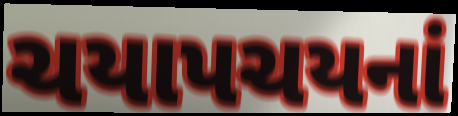
ચયાપચયનાં